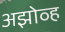
अझोव्ह